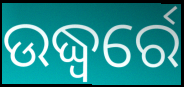
ଉଦ୍ଧ୍ୱର୍ରେ